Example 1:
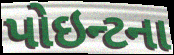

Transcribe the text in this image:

પોઇન્ટના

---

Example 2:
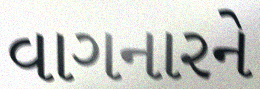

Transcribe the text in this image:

વાગનારને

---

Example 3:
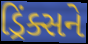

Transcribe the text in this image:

ડ્રિંક્સને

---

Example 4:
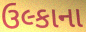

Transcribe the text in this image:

ઉલ્કાના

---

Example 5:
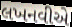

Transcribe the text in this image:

લખનવીએ